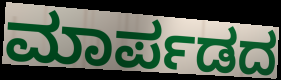
ಮಾರ್ಪಡದ